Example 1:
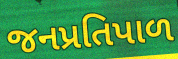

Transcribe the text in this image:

જનપ્રતિપાળ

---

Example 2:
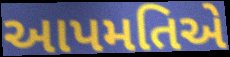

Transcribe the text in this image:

આપમતિએ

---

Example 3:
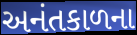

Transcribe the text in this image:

અનંતકાળના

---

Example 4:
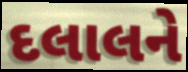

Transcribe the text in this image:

દલાલને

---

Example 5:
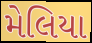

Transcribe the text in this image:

મેલિયા